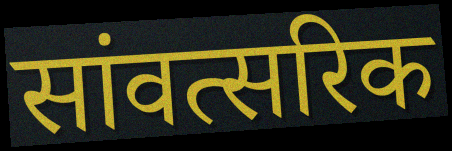
सांवत्सरिक